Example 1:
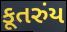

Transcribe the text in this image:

કૂતરુંય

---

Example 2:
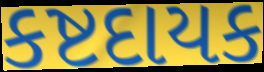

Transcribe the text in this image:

કષ્ટદાયક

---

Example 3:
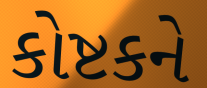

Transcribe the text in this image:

કોષ્ટકને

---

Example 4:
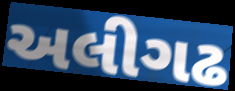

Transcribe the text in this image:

અલીગઢ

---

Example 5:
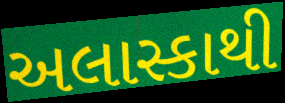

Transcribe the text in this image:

અલાસ્કાથી